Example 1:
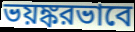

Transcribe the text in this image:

ভয়ঙ্করভাবে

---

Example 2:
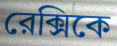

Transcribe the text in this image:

রেক্সিকে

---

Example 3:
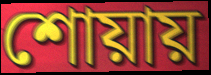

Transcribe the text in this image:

শোয়ায়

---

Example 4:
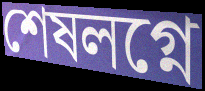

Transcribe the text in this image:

শেষলগ্নে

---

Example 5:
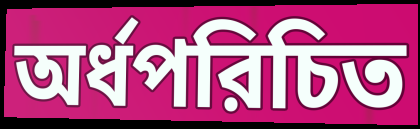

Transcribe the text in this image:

অর্ধপরিচিত